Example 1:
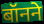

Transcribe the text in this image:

बॉनने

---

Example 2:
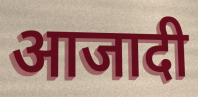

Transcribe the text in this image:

आजादी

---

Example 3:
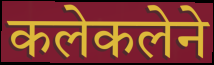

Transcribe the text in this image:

कलेकलेने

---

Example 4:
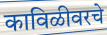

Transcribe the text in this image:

काविळीवरचे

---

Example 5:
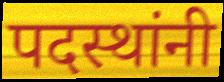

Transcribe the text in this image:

पदस्थांनी